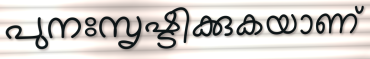
പുനഃസൃഷ്ടിക്കുകയാണ്